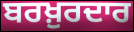
ਬਰਖ਼ੁਰਦਾਰ